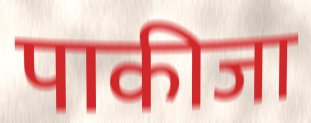
पाकीजा